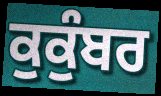
ਕੁਕੁੰਬਰ